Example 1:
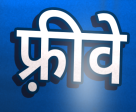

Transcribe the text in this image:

फ़्रीवे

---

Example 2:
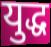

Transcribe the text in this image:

युद्ध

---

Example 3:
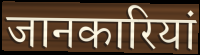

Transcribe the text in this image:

जानकारियां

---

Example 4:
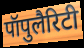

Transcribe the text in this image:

पॉपुलैरिटी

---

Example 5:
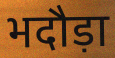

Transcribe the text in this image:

भदौड़ा